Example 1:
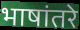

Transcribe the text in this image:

भाषांतरे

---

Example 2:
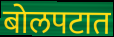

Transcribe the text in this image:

बोलपटात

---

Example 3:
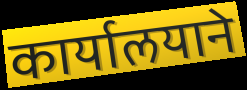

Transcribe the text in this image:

कार्यालयाने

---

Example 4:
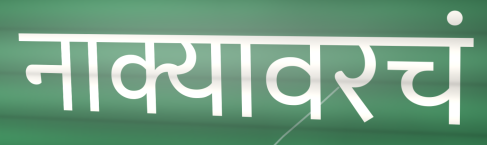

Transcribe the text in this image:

नाक्यावरचं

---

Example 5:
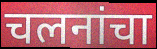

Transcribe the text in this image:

चलनांचा